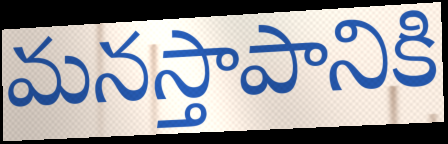
మనస్తాపానికి